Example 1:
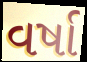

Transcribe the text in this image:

વર્ષા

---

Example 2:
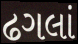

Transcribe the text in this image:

ઢગલાં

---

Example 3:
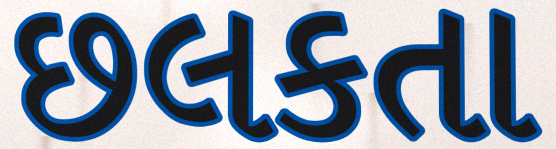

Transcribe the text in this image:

છલકતા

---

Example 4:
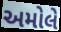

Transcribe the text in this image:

અમોલે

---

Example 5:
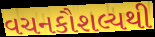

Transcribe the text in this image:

વચનકૌશલ્યથી